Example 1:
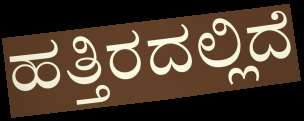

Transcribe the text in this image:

ಹತ್ತಿರದಲ್ಲಿದೆ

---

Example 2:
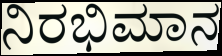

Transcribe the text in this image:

ನಿರಭಿಮಾನ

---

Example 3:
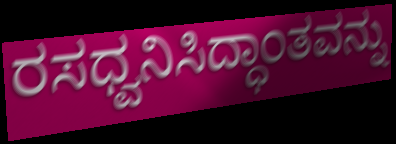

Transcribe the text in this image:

ರಸಧ್ವನಿಸಿದ್ಧಾಂತವನ್ನು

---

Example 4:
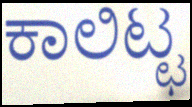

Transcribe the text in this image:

ಕಾಲಿಟ್ಟ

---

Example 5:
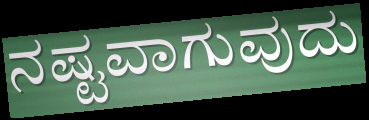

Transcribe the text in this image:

ನಷ್ಟವಾಗುವುದು